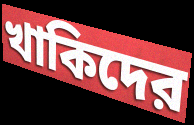
খাকিদের